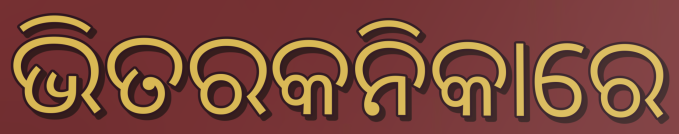
ଭିତରକନିକାରେ